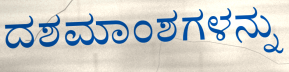
ದಶಮಾಂಶಗಳನ್ನು